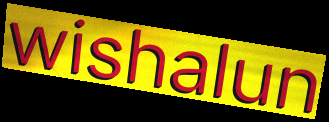
wishalun